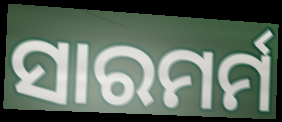
ସାରମର୍ମ